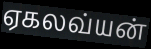
ஏகலவ்யன்